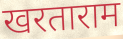
खरताराम